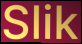
Slik